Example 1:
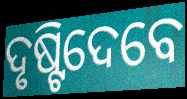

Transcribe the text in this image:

ଦୃଷ୍ଟିଦେବେ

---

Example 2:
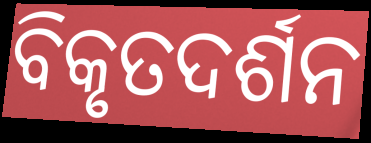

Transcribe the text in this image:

ବିକୃତଦର୍ଶନ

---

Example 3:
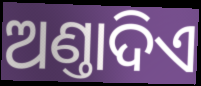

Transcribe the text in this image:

ଅଣ୍ତାଦିଏ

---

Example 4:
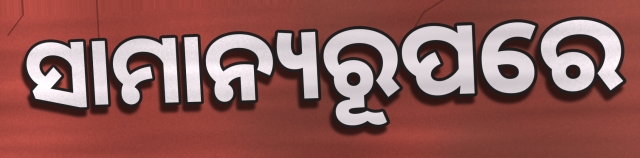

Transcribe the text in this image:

ସାମାନ୍ୟରୂପରେ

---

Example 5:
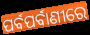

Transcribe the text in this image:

ପର୍ବପର୍ବାଣୀରେ